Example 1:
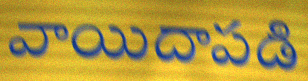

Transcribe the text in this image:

వాయిదాపడి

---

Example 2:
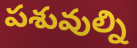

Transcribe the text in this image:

పశువుల్ని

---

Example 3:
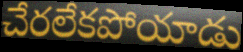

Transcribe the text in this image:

చేరలేకపోయాడు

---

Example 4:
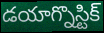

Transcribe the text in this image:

డయాగ్నొస్టిక్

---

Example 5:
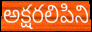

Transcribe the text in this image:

అక్షరలిపిని